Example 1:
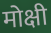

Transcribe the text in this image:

मोक्षी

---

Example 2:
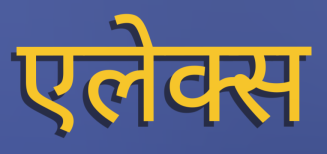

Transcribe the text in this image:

एलेक्स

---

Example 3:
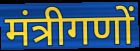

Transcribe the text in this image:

मंत्रीगणों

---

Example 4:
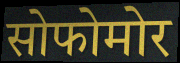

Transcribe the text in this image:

सोफोमोर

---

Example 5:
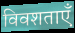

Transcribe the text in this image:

विवशताएँ